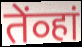
तेंव्हां